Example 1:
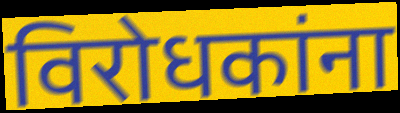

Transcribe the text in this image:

विरोधकांना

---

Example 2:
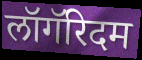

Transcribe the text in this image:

लॉगॅरिदम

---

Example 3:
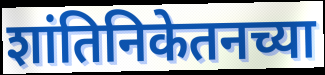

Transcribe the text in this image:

शांतिनिकेतनच्या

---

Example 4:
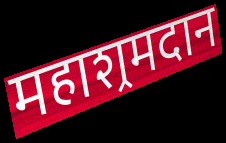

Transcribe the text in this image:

महाश्रमदान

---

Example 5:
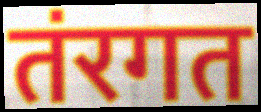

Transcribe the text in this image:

तंरगत